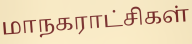
மாநகராட்சிகள்